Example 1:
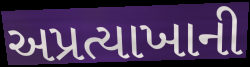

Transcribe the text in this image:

અપ્રત્યાખાની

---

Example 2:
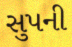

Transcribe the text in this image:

સુપની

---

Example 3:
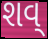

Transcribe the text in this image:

શવ્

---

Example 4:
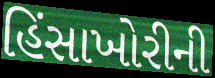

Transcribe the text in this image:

હિંસાખોરીની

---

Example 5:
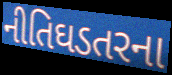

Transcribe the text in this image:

નીતિઘડતરના